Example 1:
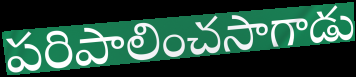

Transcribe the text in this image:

పరిపాలించసాగాడు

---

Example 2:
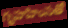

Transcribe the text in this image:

గృహహింసతో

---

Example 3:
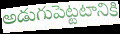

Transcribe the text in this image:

అడుగుపెట్టటానికి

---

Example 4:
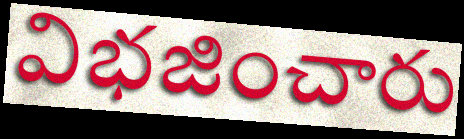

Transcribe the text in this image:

విభజించారు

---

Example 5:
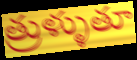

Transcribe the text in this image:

త్రుళ్ళుతూ